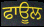
ਫਾਊਲ